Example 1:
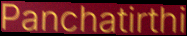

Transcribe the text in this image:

Panchatirthi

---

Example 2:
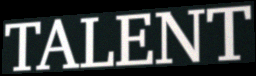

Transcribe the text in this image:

TALENT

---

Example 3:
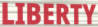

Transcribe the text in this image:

LIBERTY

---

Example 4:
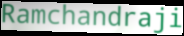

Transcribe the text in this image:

Ramchandraji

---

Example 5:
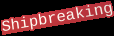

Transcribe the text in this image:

Shipbreaking